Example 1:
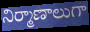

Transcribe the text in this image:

నిర్మాణాలుగా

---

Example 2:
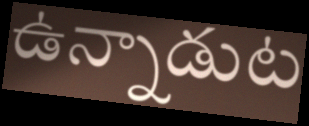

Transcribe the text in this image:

ఉన్నాడుట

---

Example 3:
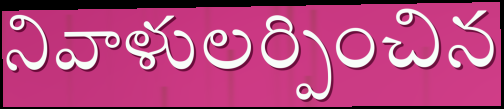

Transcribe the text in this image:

నివాళులర్పించిన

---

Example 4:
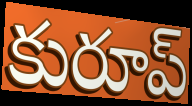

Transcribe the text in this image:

కురూప్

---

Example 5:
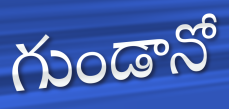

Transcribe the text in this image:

గుండానో